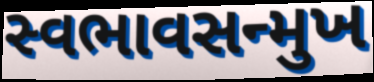
સ્વભાવસન્મુખ